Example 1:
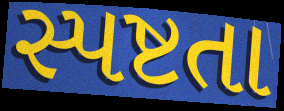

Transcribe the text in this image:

સ્પષ્ટતા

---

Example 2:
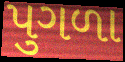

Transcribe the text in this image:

પુગળા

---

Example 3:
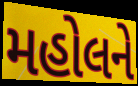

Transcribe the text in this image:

મહોલને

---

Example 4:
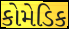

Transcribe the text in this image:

કોમેડિક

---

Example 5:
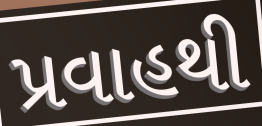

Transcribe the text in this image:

પ્રવાહથી